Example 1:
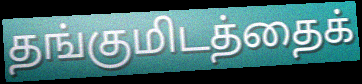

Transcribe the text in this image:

தங்குமிடத்தைக்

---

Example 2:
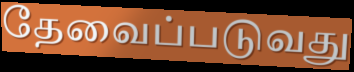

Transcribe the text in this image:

தேவைப்படுவது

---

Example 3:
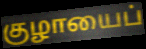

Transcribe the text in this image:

குழாயைப்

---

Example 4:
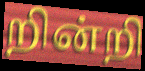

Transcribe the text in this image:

றின்றி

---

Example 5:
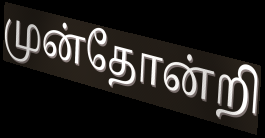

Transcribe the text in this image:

முன்தோன்றி